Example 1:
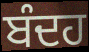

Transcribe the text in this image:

ਬੰਦਹ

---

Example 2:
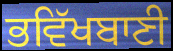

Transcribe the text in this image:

ਭਵਿੱਖਬਾਣੀ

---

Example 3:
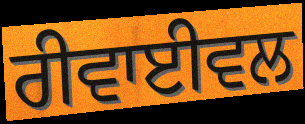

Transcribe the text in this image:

ਰੀਵਾਈਵਲ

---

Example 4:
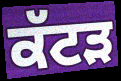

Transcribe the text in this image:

ਕੱਟੜ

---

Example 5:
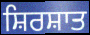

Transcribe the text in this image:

ਸ਼ਿਰਸ਼ਾਤ